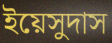
ইয়েসুদাস